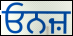
ਓਨਜ਼